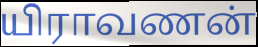
யிராவணன்